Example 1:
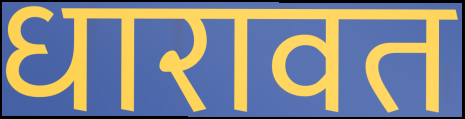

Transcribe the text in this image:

धारावत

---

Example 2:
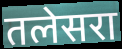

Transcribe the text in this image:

तलेसरा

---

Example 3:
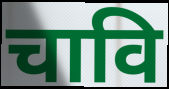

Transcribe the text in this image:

चावि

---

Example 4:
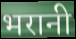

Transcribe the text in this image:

भरानी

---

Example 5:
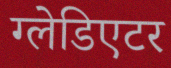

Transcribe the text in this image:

ग्लेडिएटर